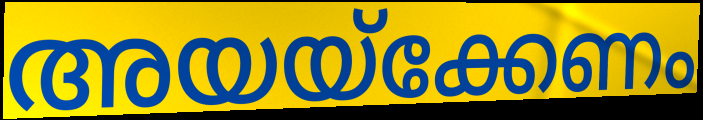
അയയ്ക്കേണം